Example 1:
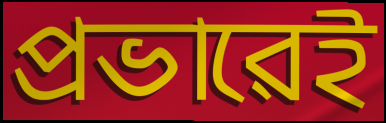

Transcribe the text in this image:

প্ৰভাৱেই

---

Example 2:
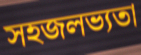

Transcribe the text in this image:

সহজলভ্যতা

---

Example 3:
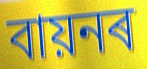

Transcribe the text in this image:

বায়নৰ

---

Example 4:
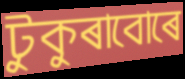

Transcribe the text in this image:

টুকুৰাবোৰে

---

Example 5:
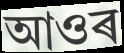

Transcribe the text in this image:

আওৰ